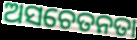
ଅସଚେତନତା